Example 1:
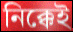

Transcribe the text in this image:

নিক্কেই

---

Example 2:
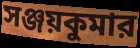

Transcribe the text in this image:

সঞ্জয়কুমার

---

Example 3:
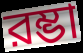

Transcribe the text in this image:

রম্ভা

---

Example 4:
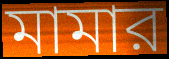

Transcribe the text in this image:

মামার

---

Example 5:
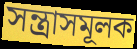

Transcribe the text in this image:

সন্ত্রাসমূলক